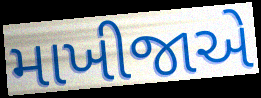
માખીજાએ